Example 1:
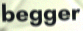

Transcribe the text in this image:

begger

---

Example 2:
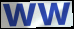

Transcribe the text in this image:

ww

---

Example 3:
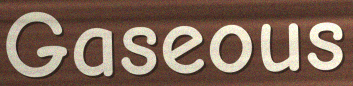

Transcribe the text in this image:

Gaseous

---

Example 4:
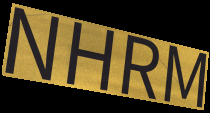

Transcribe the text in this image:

NHRM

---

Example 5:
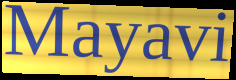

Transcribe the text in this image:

Mayavi